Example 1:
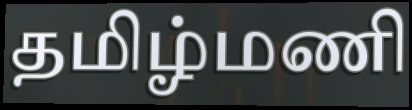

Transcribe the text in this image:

தமிழ்மணி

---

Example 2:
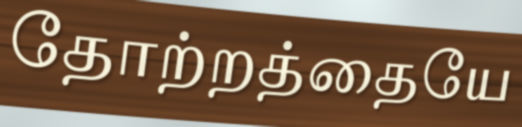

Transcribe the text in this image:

தோற்றத்தையே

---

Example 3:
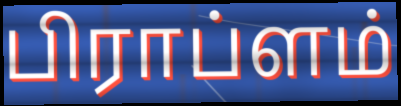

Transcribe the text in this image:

பிராப்ளம்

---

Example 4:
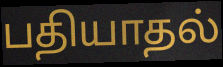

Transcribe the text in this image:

பதியாதல்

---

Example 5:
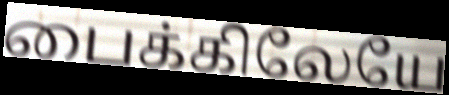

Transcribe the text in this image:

பைக்கிலேயே